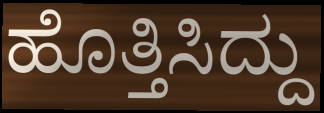
ಹೊತ್ತಿಸಿದ್ದು